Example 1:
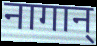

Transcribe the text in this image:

नागान्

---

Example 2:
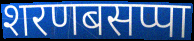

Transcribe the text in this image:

शरणबसप्पा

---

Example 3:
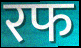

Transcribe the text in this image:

रफ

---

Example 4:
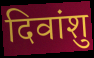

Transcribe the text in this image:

दिवांशु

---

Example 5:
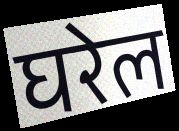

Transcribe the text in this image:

घरेल